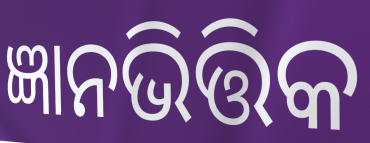
ଜ୍ଞାନଭିତ୍ତିକ